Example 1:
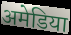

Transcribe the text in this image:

अमेडिया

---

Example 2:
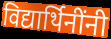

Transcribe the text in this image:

विद्यार्थिनींनी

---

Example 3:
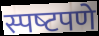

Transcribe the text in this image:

स्‍पष्‍टपणे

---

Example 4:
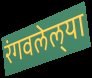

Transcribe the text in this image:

रंगवलेल्या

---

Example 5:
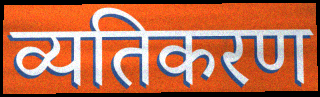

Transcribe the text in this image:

व्यतिकरण